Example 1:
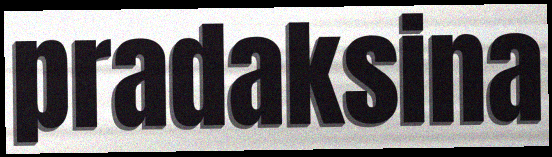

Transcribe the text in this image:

pradaksina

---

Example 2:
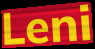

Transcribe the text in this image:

Leni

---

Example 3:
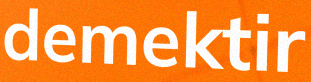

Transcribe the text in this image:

demektir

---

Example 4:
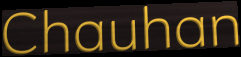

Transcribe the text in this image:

Chauhan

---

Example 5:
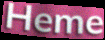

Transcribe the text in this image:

Heme